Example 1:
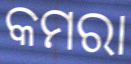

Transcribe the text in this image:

କମରା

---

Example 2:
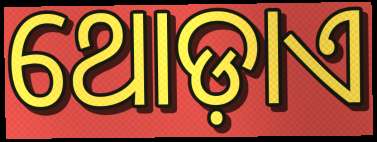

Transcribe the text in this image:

ଥୋଡ଼ାଏ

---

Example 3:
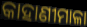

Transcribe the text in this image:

କାହାଣୀମାଳା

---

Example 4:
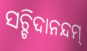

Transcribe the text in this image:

ସଚ୍ଚିଦାନନ୍ଦମ୍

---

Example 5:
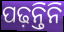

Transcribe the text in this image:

ପଢ଼ନ୍ତିନି